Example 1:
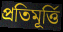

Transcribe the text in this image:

প্ৰতিমূৰ্ত্তি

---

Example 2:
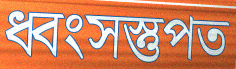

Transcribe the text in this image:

ধ্বংসস্তুপত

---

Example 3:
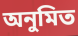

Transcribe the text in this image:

অনুমিত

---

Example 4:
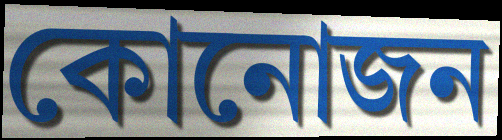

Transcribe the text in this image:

কোনোজন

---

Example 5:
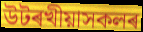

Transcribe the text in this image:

উটৰখীয়াসকলৰ